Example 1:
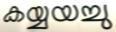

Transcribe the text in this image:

കയ്യയച്ചു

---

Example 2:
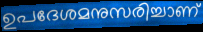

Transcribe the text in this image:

ഉപദേശമനുസരിച്ചാണ്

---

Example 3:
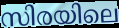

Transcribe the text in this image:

സിരയിലെ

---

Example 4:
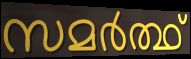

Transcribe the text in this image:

സമർത്ഥ്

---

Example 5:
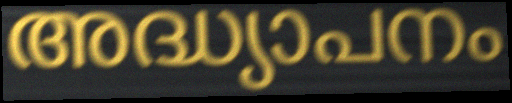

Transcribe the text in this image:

അദ്ധ്യാപനം